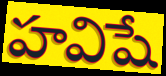
హవిషే